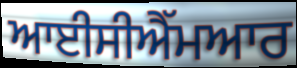
ਆਈਸੀਐੱਮਆਰ